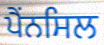
ਪੈਂਨਸਿਲ